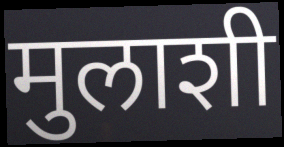
मुलाशी